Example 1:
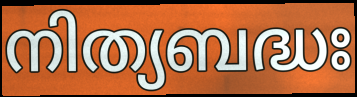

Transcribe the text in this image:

നിത്യബദ്ധഃ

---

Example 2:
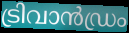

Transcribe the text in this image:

ട്രിവാൻഡ്രം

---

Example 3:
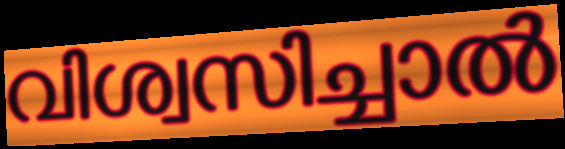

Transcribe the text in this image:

വിശ്വസിച്ചാൽ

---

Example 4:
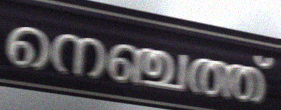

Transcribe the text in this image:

നെഞ്ചത്ത്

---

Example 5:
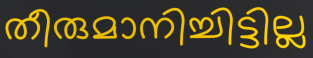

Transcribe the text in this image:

തീരുമാനിച്ചിട്ടില്ല